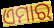
ଏମାର